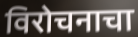
विरोचनाचा